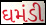
ઘમંડી